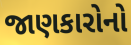
જાણકારોનો